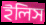
ইলিস